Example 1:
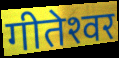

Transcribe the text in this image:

गीतेश्वर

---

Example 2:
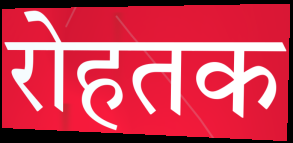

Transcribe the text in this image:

रोहतक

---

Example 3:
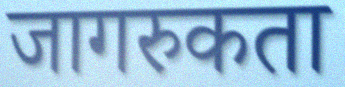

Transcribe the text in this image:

जागरुकता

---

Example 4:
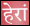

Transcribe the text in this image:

हेरां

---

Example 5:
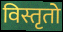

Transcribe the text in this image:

विस्तृतो